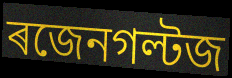
ৰজেনগল্টজ